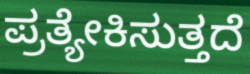
ಪ್ರತ್ಯೇಕಿಸುತ್ತದೆ